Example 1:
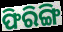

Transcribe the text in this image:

ଫିରିଙ୍ଗି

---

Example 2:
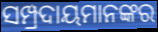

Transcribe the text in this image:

ସମ୍ପ୍ରଦାୟମାନଙ୍କର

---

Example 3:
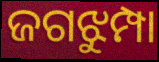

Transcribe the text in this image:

ଜଗଝୁମ୍ପା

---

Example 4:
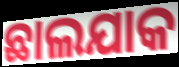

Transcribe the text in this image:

ଛାଲଯାକ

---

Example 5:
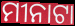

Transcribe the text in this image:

ମୀନାଟା